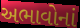
અભાવોનાં